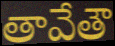
తావేతౌ